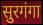
सुरगंगा